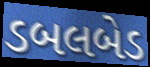
ડબલબેડ